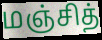
மஞ்சித்